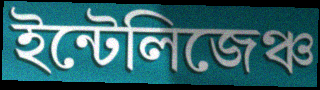
ইন্টেলিজেঞ্চ